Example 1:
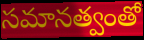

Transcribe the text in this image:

సమానత్వంతో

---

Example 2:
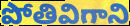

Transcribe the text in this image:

పోతివిగాని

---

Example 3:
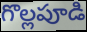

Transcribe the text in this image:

గొల్లపూడి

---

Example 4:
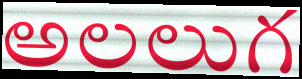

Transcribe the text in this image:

అలలుగ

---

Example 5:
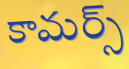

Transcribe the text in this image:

కామర్స్